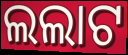
ଲଲାଟ